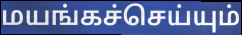
மயங்கச்செய்யும்